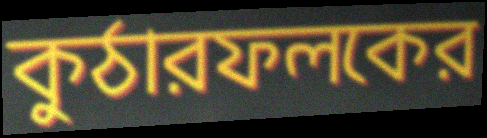
কুঠারফলকের